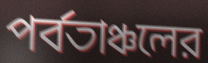
পর্বতাঞ্চলের